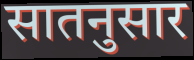
सातनुसार